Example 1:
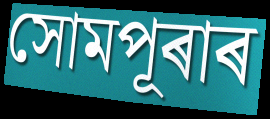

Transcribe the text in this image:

সোমপূৰাৰ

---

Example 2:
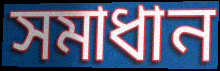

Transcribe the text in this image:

সমাধান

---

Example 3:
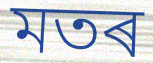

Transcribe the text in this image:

মতৰ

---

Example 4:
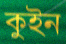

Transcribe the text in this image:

কুইন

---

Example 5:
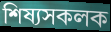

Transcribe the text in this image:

শিষ্যসকলক